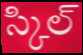
స్కిల్